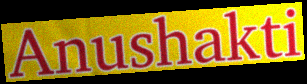
Anushakti